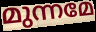
മുന്നമേ